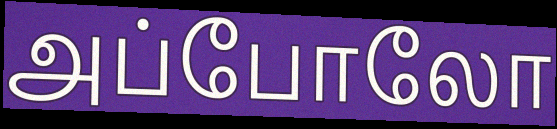
அப்போலோ